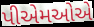
પીએમઓએ